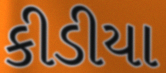
કીડીયા